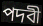
পদবী